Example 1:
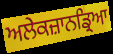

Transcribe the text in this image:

ਅਲੇਕਜ਼ਾਨਡ੍ਰਿਆ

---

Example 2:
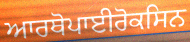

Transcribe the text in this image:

ਆਰਥੋਪਾਈਰੋਕਸਿਨ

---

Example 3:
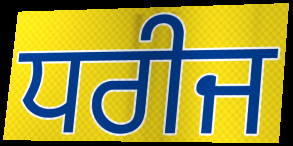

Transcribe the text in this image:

ਧਰੀਜ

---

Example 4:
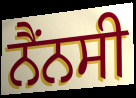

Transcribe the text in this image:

ਨੈਂਨਸੀ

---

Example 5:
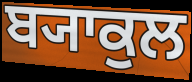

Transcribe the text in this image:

ਬ੍ਯਾਕੁਲ